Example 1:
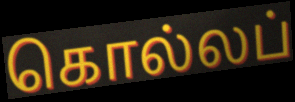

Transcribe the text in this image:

கொல்லப்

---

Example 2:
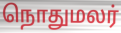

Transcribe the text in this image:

நொதுமலர்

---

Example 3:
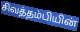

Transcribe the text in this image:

சிவத்தம்பியின்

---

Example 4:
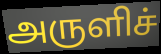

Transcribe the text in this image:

அருளிச்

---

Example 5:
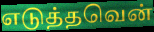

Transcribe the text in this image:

எடுத்தவென்